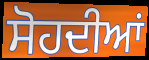
ਸੋਹਦੀਆਂ